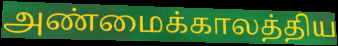
அண்மைக்காலத்திய